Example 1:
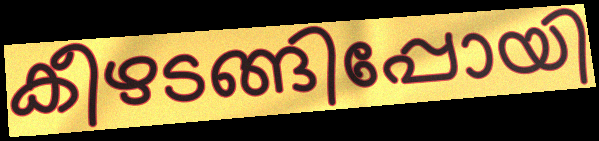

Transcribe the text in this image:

കീഴടങ്ങിപ്പോയി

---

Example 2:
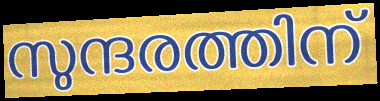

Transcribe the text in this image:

സുന്ദരത്തിന്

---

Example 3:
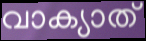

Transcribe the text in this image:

വാക്യാത്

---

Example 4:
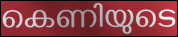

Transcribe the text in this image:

കെണിയുടെ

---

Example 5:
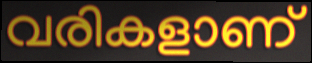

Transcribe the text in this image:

വരികളാണ്